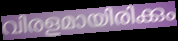
വിരളമായിരിക്കും